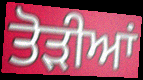
ਤੋਡ਼ੀਆਂ